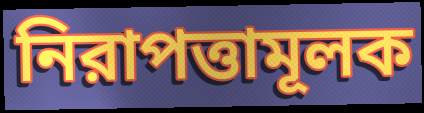
নিরাপত্তামূলক